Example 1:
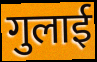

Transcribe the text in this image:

गुलाई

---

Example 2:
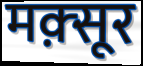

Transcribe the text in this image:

मक़्सूर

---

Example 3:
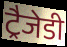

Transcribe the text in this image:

ट्रैजेडी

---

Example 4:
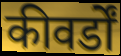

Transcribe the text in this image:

कीवर्डों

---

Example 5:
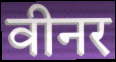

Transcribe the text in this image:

वीनर